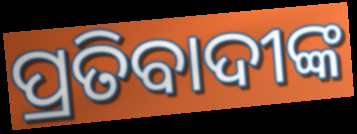
ପ୍ରତିବାଦୀଙ୍କ